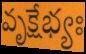
వృక్షేభ్యః